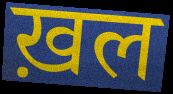
ख़ल